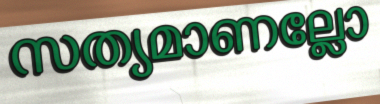
സത്യമാണല്ലോ